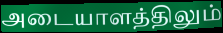
அடையாளத்திலும்